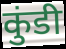
कुंडी